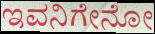
ಇವನಿಗೇನೋ